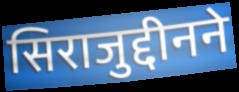
सिराजुद्दीनने